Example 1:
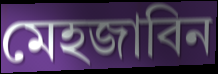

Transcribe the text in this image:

মেহজাবিন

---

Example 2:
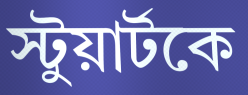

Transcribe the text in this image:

স্টুয়ার্টকে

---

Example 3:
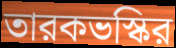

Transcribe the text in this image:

তারকভস্কির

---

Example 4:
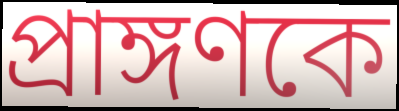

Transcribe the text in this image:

প্রাঙ্গণকে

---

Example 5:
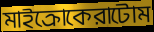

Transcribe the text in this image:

মাইক্রোকেরাটোম